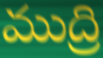
ముద్రి